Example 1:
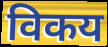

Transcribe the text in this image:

विकय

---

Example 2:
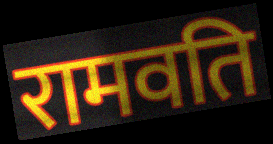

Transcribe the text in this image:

रामवति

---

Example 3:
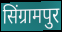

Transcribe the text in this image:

सिंग्रामपुर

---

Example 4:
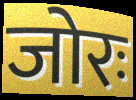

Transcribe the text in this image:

जोरः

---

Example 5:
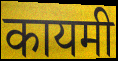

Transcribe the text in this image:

कायमी